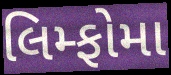
લિમ્ફોમા